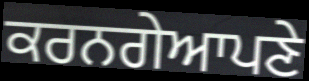
ਕਰਨਗੇਆਪਣੇ